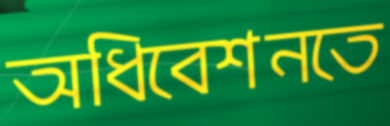
অধিবেশনতে